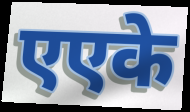
एएके